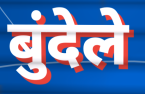
बुंदेले